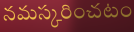
నమస్కరించటం